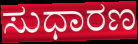
ಸುಧಾರಣ